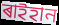
ৰাইহান